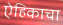
ऐहिकाचा